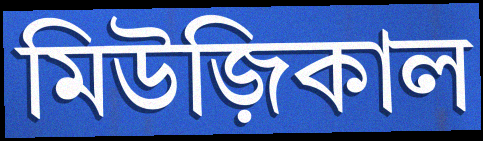
মিউজ়িকাল